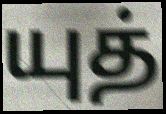
யுத்